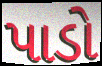
પાડો